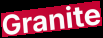
Granite